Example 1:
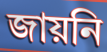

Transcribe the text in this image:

জায়নি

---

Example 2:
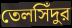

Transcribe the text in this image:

তেলসিঁদুর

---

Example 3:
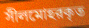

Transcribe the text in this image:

সীলমোহরকৃত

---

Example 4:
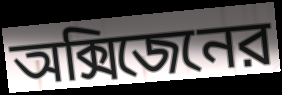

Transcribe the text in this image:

অক্সিজেনের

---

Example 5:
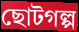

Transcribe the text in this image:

ছোটগল্প